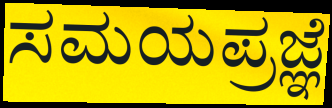
ಸಮಯಪ್ರಜ್ಞೆ